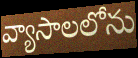
వ్యాసాలలోను